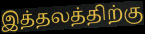
இத்தலத்திற்கு